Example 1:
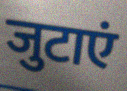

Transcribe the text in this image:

जुटाएं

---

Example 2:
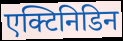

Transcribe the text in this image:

एक्टिनिडिन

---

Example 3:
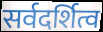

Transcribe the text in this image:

सर्वदर्शित्व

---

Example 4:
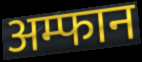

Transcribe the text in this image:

अम्‍फान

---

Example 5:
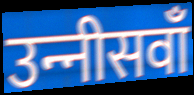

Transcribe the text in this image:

उन्‍नीसवाँ